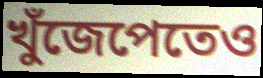
খুঁজেপেতেও